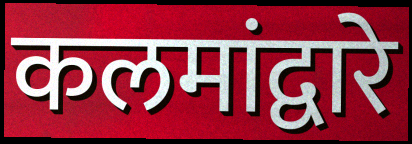
कलमांद्वारे